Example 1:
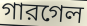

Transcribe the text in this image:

গারগেল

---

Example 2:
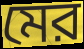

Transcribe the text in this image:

মের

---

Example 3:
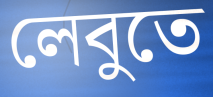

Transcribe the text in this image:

লেবুতে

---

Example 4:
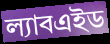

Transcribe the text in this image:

ল্যাবএইড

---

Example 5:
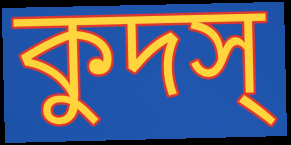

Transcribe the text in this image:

কুদস্